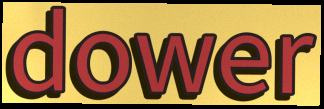
dower